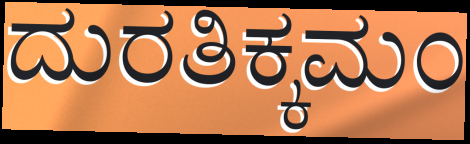
ದುರತಿಕ್ಕಮಂ